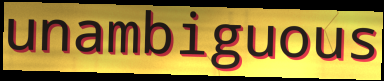
unambiguous